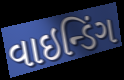
વાઇન્ડિંગ